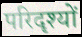
परिदृश्यों